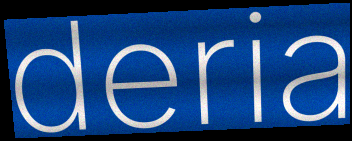
deria